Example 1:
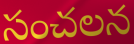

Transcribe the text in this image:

సంచలన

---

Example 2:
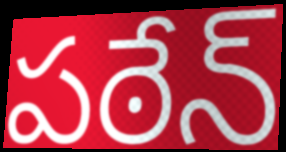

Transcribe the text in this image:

పఠేన్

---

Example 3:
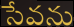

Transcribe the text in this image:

సేవను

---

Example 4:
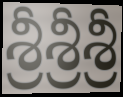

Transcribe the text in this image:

శ్రీశ్రీశ్రీ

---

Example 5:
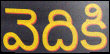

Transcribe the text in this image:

వెదికి